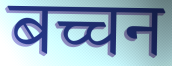
बच्‍चन